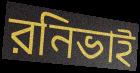
রনিভাই